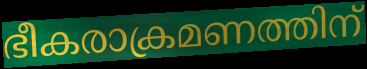
ഭീകരാക്രമണത്തിന്